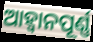
ଆହ୍ବାନପୂର୍ଣ୍ଣ